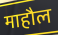
माहौल